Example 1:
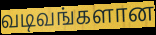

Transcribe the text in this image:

வடிவங்களான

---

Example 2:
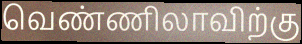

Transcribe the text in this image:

வெண்ணிலாவிற்கு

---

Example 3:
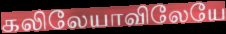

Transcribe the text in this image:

கலிலேயாவிலேயே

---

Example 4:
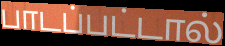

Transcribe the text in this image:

பாடப்பட்டால்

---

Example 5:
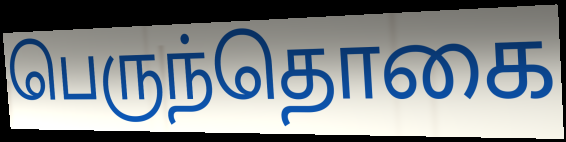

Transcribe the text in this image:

பெருந்தொகை